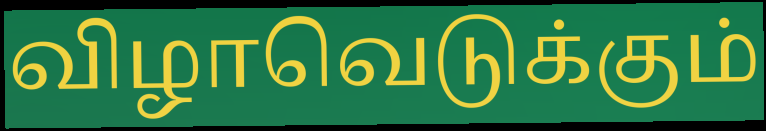
விழாவெடுக்கும்